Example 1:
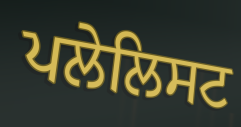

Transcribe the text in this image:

ਪਲੇਲਿਸਟ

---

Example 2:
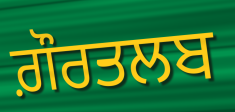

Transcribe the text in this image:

ਗ਼ੌਰਤਲਬ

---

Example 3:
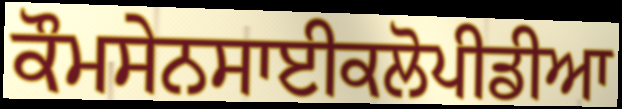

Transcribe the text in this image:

ਕੌਮਸੇਨਸਾਈਕਲੋਪੀਡੀਆ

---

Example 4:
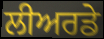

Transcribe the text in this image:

ਲੀਅਰਡੇ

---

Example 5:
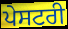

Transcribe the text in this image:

ਪੇਸਟਰੀ